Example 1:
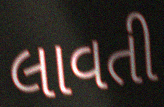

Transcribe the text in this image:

લાવતી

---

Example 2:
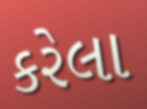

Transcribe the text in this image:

કરેલા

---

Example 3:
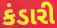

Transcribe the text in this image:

કંડારી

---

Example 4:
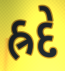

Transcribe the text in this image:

હ્રદે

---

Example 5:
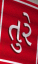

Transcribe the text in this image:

તુરે